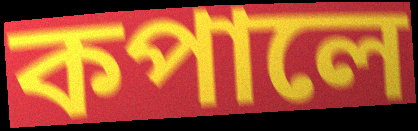
কপালে